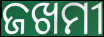
ଜଖମୀ